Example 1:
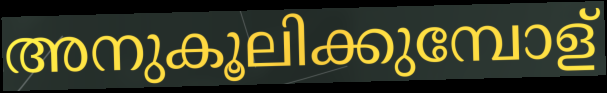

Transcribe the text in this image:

അനുകൂലിക്കുമ്പോള്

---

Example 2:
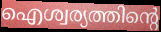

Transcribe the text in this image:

ഐശ്വര്യത്തിന്റെ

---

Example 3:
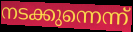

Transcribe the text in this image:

നടക്കുന്നെന്ന്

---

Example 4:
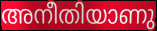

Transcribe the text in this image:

അനീതിയാണു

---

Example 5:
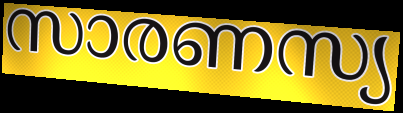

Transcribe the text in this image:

സാരണസ്യ